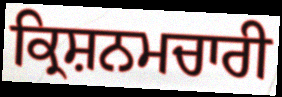
ਕ੍ਰਿਸ਼ਨਮਚਾਰੀ